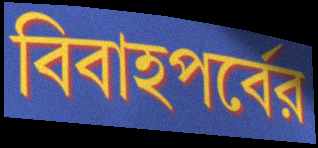
বিবাহপর্বের